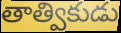
తాత్వికుడు